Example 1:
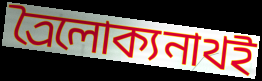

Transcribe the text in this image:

ত্রৈলোক্যনাথই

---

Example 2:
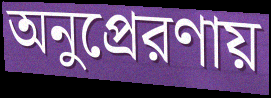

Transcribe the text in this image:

অনুপ্রেরণায়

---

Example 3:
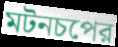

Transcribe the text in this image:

মটনচপের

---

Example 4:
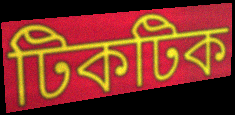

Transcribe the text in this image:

টিকটিক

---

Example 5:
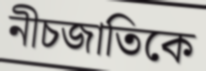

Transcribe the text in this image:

নীচজাতিকে